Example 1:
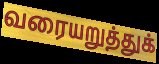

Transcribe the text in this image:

வரையறுத்துக்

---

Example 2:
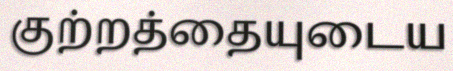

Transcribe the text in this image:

குற்றத்தையுடைய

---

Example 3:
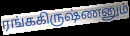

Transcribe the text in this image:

ரங்ககிருஷ்ணனும்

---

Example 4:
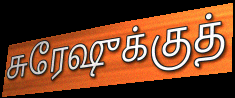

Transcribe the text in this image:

சுரேஷுக்குத்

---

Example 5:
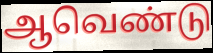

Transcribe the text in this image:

ஆவெண்டு